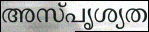
അസ്പൃശ്യത